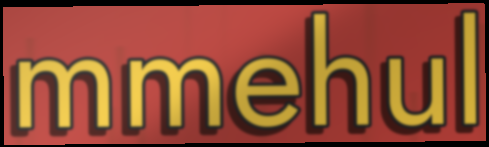
mmehul